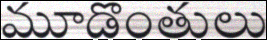
మూడొంతులు